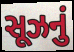
સૂઝનું